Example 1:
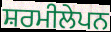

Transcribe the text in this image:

ਸ਼ਰਮੀਲੇਪਨ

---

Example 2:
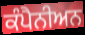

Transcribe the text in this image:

ਕੰਪੈਨੀਅਨ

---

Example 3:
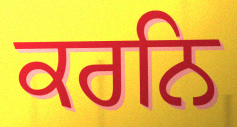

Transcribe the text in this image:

ਕਰਨਿ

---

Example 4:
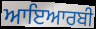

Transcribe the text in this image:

ਆਇਆਰਬੀ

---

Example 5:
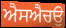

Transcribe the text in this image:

ਐਸਐਚਉ